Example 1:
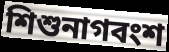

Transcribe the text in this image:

শিশুনাগবংশ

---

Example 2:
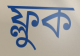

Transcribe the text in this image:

ফ্লুক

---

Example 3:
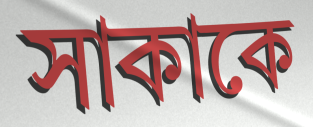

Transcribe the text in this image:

সাকাকে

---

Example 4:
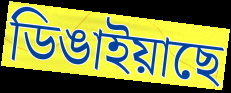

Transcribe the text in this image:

ডিঙাইয়াছে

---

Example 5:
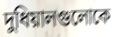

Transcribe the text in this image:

দুধিয়ালগুলোকে